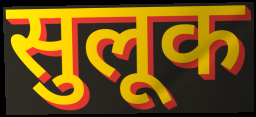
सुलूक